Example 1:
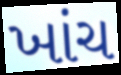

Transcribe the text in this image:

ખાંચ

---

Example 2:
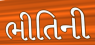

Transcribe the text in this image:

ભીતિની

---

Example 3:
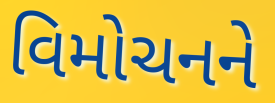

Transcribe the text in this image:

વિમોચનને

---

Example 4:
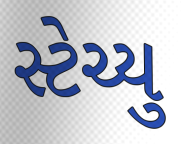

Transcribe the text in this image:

સ્ટેચ્યુ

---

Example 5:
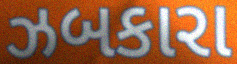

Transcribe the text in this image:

ઝબકારા